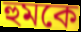
হুমকে